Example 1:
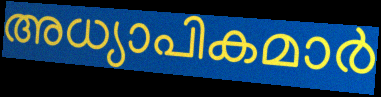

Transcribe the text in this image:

അധ്യാപികമാർ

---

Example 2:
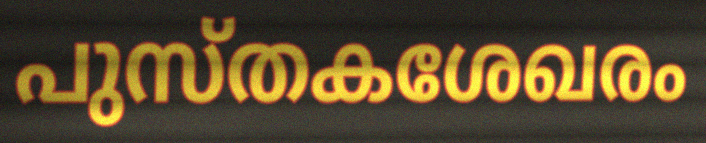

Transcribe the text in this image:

പുസ്തകശേഖരം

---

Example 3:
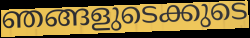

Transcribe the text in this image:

ഞങ്ങളുടെക്കുടെ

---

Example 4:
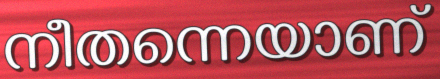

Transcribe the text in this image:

നീതന്നെയാണ്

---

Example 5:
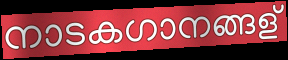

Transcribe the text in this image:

നാടകഗാനങ്ങള്